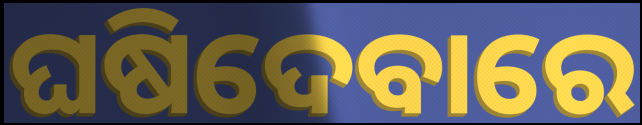
ଘଷିଦେବାରେ